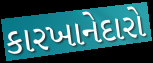
કારખાનેદારો